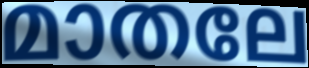
മാതലേ